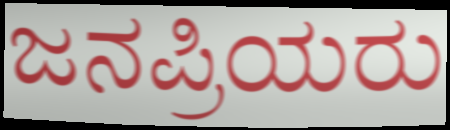
ಜನಪ್ರಿಯರು